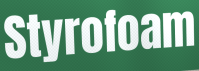
Styrofoam